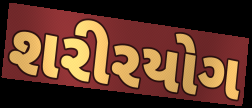
શરીરયોગ